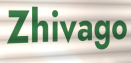
Zhivago